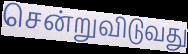
சென்றுவிடுவது